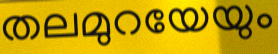
തലമുറയേയും